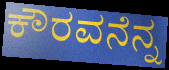
ಕೌರವನೆನ್ನ